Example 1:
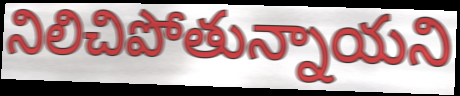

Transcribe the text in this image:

నిలిచిపోతున్నాయని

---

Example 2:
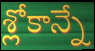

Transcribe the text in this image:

శ్లోకాన్నే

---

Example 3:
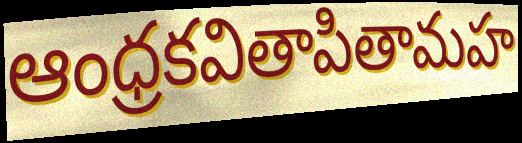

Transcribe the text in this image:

ఆంధ్రకవితాపితామహ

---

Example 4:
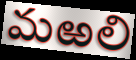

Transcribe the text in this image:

మఱలి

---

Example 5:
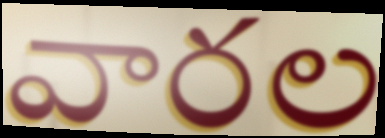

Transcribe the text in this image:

వారల